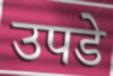
उपडे